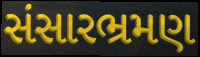
સંસારભ્રમણ